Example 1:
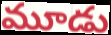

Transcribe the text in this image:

మూడు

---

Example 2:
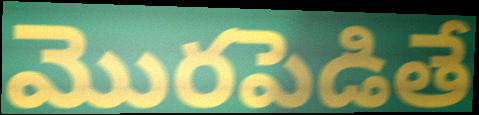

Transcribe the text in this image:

మొరపెడితే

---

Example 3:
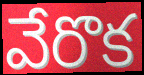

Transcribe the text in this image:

వేరొక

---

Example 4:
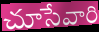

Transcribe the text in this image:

చూసేవారి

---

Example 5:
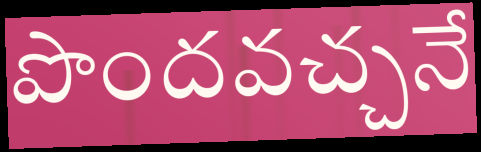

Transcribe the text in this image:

పొందవచ్చనే